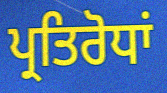
ਪ੍ਰਤਿਰੋਧਾਂ